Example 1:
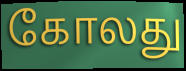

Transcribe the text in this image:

கோலது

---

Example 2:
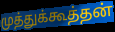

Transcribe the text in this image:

முத்துக்கூத்தன்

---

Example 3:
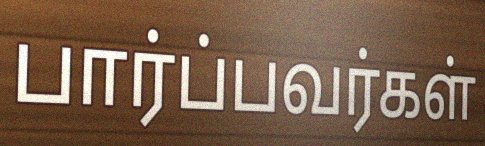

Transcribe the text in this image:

பார்ப்பவர்கள்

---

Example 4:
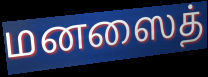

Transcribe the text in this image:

மனஸைத்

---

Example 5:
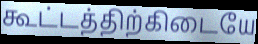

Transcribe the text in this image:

கூட்டத்திற்கிடையே